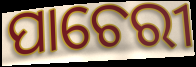
ପାଚେରୀ